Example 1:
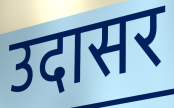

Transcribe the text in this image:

उदासर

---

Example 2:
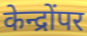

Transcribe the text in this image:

केन्द्रोंपर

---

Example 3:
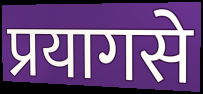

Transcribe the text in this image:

प्रयागसे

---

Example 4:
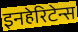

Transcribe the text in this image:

इनहेरिटेन्स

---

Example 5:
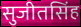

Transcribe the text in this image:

सुजीतसिंह